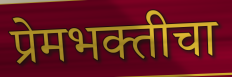
प्रेमभक्तीचा